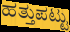
ಹತ್ತುಪಟ್ಟು